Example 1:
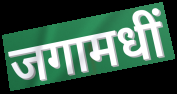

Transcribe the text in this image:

जगामधीं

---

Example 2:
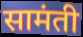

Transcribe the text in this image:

सामंती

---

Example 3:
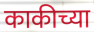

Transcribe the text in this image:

काकीच्या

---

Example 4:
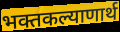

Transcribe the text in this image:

भक्तकल्याणार्थ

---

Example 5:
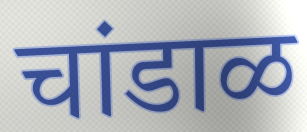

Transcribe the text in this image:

चांडाळ